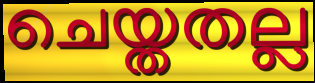
ചെയ്തതല്ല